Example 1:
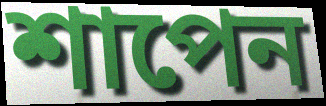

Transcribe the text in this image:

শাপেন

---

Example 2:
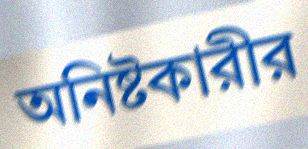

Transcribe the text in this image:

অনিষ্টকারীর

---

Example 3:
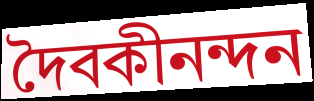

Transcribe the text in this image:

দৈবকীনন্দন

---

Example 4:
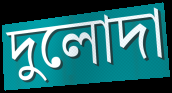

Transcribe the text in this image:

দুলোদা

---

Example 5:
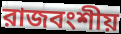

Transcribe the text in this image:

রাজবংশীয়